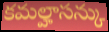
కమల్హాసన్కు